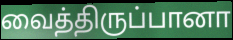
வைத்திருப்பானா